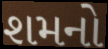
શમનો